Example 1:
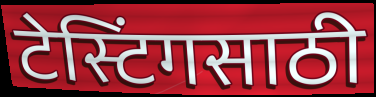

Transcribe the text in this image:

टेस्टिंगसाठी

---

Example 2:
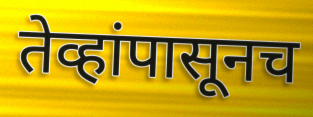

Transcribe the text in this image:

तेव्हांपासूनच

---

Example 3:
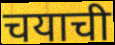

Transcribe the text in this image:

चयाची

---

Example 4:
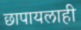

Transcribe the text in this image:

छापायलाही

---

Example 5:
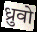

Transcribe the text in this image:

ध्रुवो